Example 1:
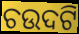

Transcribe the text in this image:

ଚଉଦଟି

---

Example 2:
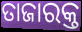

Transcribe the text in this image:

ତାଜାରକ୍ତ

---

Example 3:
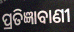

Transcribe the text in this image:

ପ୍ରତିଜ୍ଞାବାଣୀ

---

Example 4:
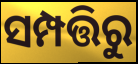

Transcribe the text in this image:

ସମ୍ପତ୍ତିରୁ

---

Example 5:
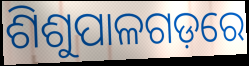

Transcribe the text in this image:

ଶିଶୁପାଳଗଡ଼ରେ